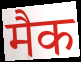
मैक